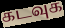
கடவுக